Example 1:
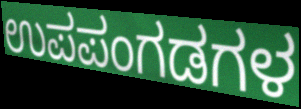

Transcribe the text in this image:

ಉಪಪಂಗಡಗಳ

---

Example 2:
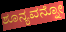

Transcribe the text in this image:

ಶೂನ್ಯವನ್ನೋ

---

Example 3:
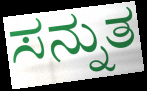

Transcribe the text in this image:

ಸನ್ನುತ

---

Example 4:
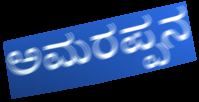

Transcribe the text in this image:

ಅಮರಪ್ಪನ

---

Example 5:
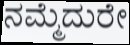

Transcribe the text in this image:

ನಮ್ಮೆದುರೇ